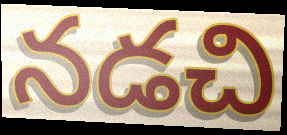
నడచి